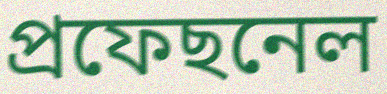
প্ৰফেছনেল